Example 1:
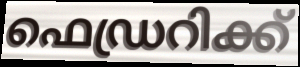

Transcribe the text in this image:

ഫെഡ്രറിക്ക്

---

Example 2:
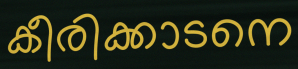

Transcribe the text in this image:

കീരിക്കാടനെ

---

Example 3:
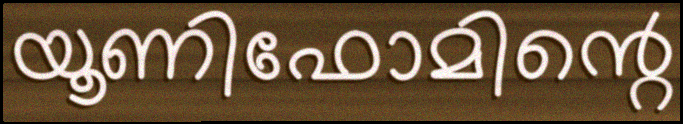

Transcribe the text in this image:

യൂണിഫോമിന്റെ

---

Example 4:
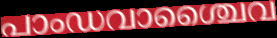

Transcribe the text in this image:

പാംഡവാശ്ചൈവ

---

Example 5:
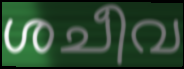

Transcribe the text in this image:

ശചീവ